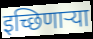
इच्छिणार्‍या